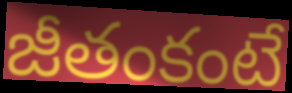
జీతంకంటే